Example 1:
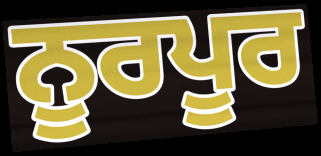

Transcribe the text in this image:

ਨੂਰਪੂਰ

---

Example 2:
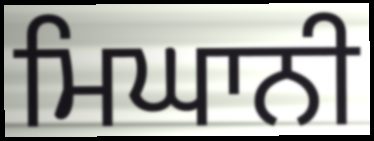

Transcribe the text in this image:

ਮਿਘਾਨੀ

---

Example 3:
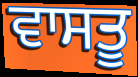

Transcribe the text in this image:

ਵਾਸਤੂ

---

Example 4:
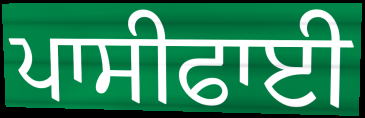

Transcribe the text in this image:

ਪਾਸੀਫਾਈ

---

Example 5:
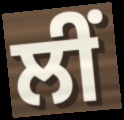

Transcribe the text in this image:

ਲੀਂ